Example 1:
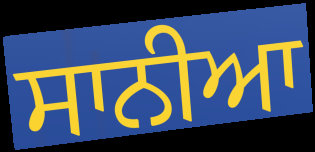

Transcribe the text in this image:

ਸਾਨੀਆ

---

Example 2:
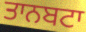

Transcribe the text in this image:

ਤਾਨਬਟਾ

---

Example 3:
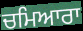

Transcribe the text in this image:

ਚਮਿਆਰਾ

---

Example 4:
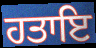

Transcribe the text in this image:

ਹਤਾਇ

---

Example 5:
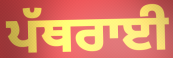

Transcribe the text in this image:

ਪੱਥਰਾਈ